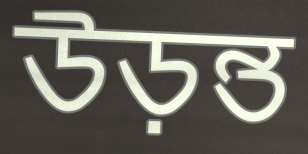
উড়ন্ত